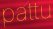
pattu